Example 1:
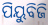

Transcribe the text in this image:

ପିୟୁବିଜି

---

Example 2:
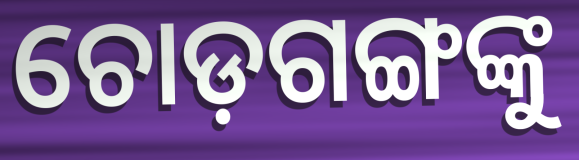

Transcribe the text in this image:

ଚୋଡ଼ଗଙ୍ଗଙ୍କୁ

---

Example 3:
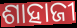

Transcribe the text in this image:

ଶାହାଜୀ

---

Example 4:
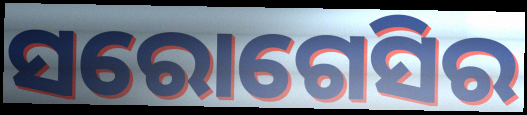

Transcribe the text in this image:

ସରୋଗେସିର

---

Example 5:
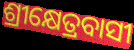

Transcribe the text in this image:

ଶ୍ରୀକ୍ଷେତ୍ରବାସୀ